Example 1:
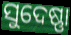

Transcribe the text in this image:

ସୁଦେଷ୍ଣା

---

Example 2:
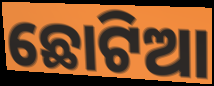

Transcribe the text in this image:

ଛୋଟିଆ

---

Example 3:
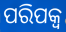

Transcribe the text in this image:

ପରିପକ୍ବ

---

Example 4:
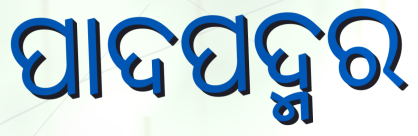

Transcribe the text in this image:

ପାଦପଦ୍ମର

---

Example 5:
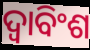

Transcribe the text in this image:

ଦ୍ୱାବିଂଶ